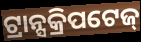
ଟ୍ରାନ୍ସକ୍ରିପଟେଜ୍